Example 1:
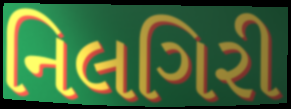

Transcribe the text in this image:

નિલગિરી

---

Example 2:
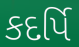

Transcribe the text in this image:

કદર્પિ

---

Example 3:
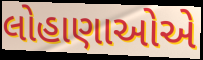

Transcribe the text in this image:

લોહાણાઓએ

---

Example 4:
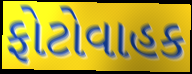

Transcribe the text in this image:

ફોટોવાહક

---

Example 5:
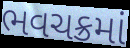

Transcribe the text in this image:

ભવચક્રમાં